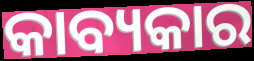
କାବ୍ୟକାର